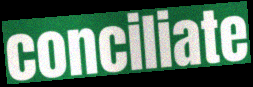
conciliate